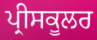
ਪ੍ਰੀਸਕੂਲਰ